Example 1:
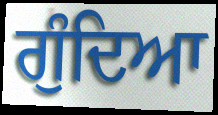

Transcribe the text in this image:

ਗੁੰਦਿਆ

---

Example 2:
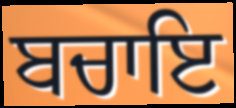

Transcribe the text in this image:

ਬਚਾਇ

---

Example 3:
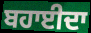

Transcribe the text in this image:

ਬਹਾਈਦਾ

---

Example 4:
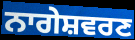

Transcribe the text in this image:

ਨਾਗੇਸ਼ਵਰਣ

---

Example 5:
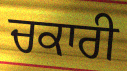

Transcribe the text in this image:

ਚਕਾਰੀ